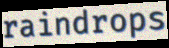
raindrops